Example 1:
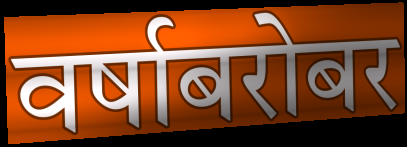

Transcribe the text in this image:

वर्षाबरोबर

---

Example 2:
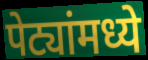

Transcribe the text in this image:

पेट्यांमध्ये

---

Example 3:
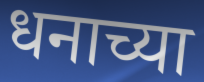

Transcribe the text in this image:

धनाच्या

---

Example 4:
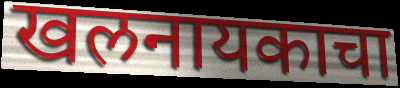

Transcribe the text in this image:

खलनायकाचा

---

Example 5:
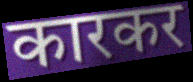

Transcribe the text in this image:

कारकर